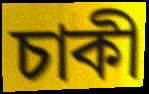
চাকী